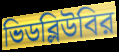
ভিডব্লিউবির